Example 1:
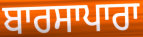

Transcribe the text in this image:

ਬਾਰਸਾਪਾਰਾ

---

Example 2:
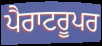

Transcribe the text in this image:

ਪੈਰਾਟਰੂਪਰ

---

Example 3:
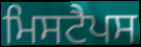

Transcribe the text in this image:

ਮਿਸਟੈਪਸ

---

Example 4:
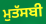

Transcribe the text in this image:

ਮੁਤੱਸਬੀ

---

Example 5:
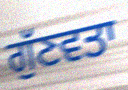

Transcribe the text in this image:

ਗੁੱਣਵਤਾ